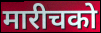
मारीचको